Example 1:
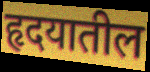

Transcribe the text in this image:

हृदयातील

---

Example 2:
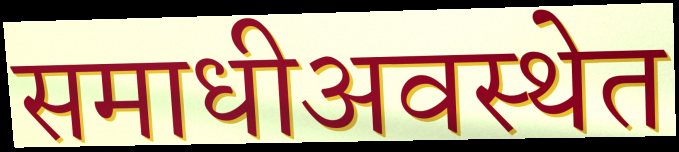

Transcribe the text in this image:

समाधीअवस्थेत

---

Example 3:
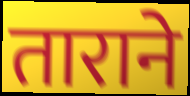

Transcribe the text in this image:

ताराने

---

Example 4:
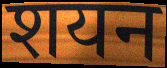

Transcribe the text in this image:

शयन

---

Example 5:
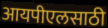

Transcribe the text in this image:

आयपीएलसाठी